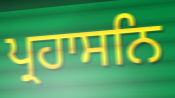
ਪ੍ਰਹਾਸਨਿ